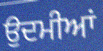
ਉਦਮੀਆਂ